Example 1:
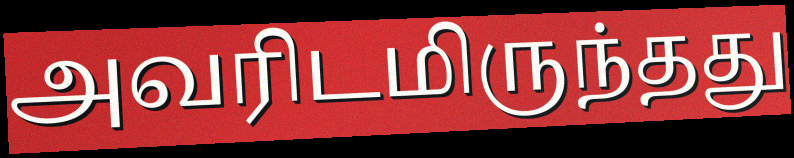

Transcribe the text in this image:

அவரிடமிருந்தது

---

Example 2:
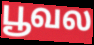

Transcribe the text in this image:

பூவல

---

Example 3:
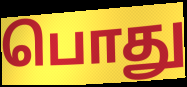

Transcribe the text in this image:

பொது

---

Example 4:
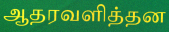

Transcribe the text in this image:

ஆதரவளித்தன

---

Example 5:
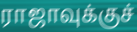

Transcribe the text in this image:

ராஜாவுக்குச்